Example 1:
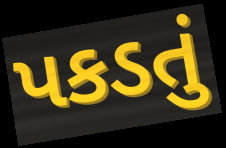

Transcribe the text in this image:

પકડતું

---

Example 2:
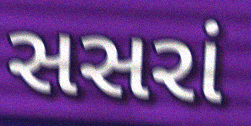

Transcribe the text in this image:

સસરાં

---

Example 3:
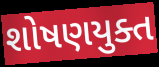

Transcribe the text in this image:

શોષણયુક્ત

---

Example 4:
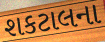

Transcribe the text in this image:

શકટાલના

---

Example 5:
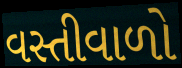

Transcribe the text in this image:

વસ્તીવાળો